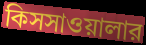
কিসসাওয়ালার